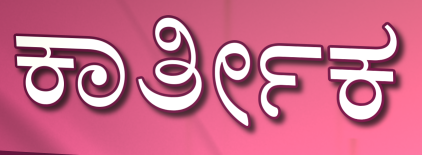
ಕಾರ್ತೀಕ